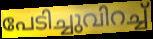
പേടിച്ചുവിറച്ച്